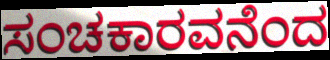
ಸಂಚಕಾರವನೆಂದ